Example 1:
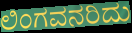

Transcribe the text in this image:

ಲಿಂಗವನರಿದು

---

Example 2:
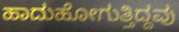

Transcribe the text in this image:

ಹಾದುಹೋಗುತ್ತಿದ್ದವು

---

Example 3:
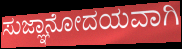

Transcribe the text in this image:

ಸುಜ್ಞಾನೋದಯವಾಗಿ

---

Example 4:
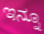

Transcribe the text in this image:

ಇನ್ನೂ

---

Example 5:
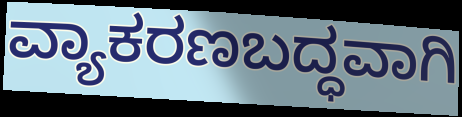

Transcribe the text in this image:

ವ್ಯಾಕರಣಬದ್ಧವಾಗಿ